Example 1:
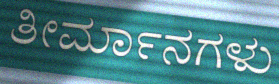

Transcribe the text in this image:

ತೀರ್ಮಾನಗಳು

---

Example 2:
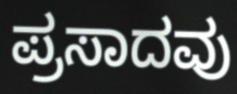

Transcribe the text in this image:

ಪ್ರಸಾದವು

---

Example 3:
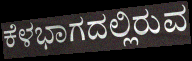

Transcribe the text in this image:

ಕೆಳಭಾಗದಲ್ಲಿರುವ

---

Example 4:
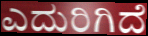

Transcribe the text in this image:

ಎದುರಿಗಿದೆ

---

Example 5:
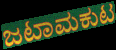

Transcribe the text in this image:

ಜಟಾಮಕುಟ